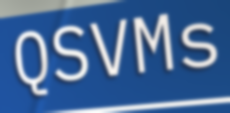
QSVMs